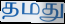
தமது